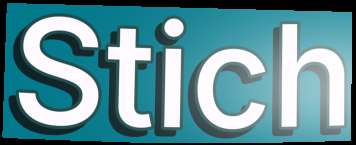
Stich